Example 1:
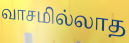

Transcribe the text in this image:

வாசமில்லாத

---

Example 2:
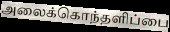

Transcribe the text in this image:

அலைக்கொந்தளிப்பை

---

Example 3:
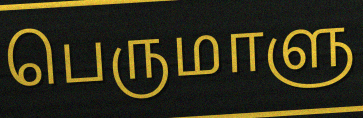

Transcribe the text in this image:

பெருமாளு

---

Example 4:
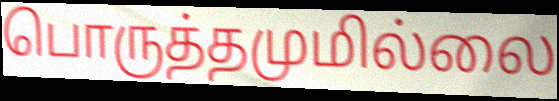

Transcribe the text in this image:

பொருத்தமுமில்லை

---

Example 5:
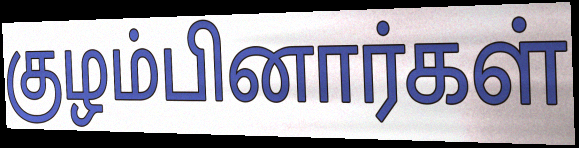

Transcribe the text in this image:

குழம்பினார்கள்